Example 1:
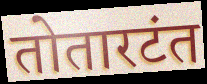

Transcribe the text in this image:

तोतारटंत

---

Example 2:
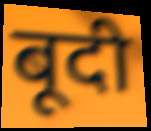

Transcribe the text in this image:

बूदी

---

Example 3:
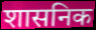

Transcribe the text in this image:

शासनिक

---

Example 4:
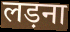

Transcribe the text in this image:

लड़ना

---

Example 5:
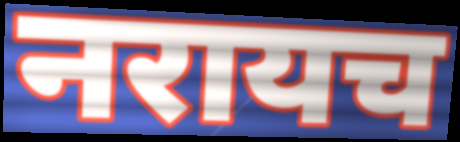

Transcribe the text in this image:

नरायच